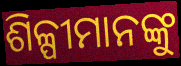
ଶିଳ୍ପୀମାନଙ୍କୁ